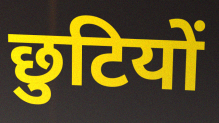
छुटियों